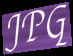
JPG